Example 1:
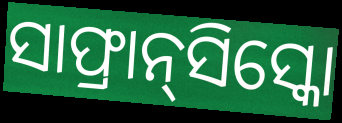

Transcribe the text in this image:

ସାଫ୍ରାନ୍‌ସିସ୍କୋ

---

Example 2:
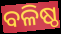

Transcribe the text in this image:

ବଳିଷ୍ଠ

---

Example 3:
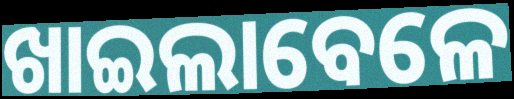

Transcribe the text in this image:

ଖାଇଲାବେଳେ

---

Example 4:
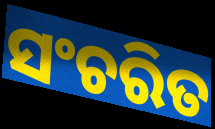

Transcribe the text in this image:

ସଂଚରିତ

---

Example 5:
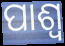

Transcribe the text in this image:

ପାଶ୍ୱ